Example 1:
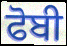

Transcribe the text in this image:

ਫੋਬੀ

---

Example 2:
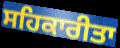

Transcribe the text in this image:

ਸਹਿਕਾਰੀਤਾ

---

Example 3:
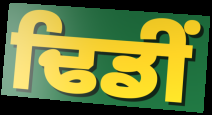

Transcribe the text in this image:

ਢਿਡੀਂ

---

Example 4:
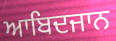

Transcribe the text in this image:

ਆਬਿਦਜਾਨ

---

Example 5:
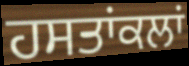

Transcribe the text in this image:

ਹਸਤਾਂਕਲਾਂ